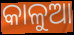
କାଳୁଆ